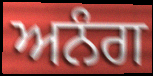
ਅਨੰਗ